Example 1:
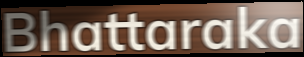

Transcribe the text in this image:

Bhattaraka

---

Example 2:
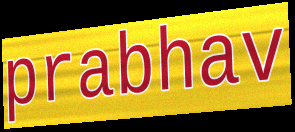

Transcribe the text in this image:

prabhav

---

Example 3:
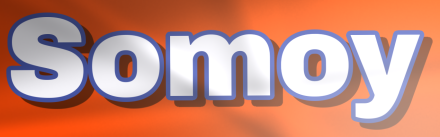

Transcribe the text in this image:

Somoy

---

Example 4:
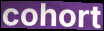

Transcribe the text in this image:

cohort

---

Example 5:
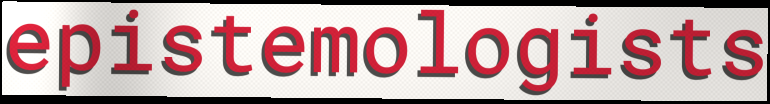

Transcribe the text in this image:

epistemologists